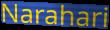
Narahari